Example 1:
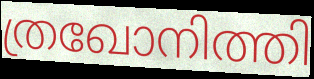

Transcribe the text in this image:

ത്രഖോനിത്തി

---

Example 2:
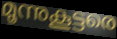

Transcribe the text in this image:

മൂന്നുകൂട്ടരെ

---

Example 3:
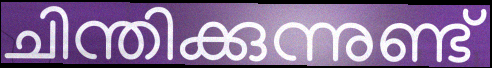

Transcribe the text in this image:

ചിന്തിക്കുന്നുണ്ട്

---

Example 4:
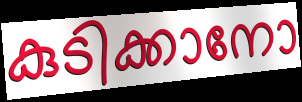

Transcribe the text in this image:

കുടിക്കാനോ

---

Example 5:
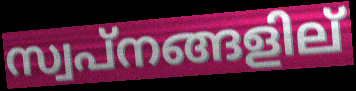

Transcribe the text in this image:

സ്വപ്നങ്ങളില്